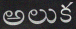
అలుక